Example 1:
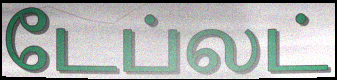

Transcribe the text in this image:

டேப்லட்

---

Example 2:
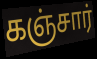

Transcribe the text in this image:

கஞ்சார்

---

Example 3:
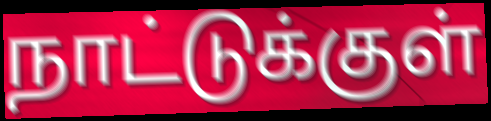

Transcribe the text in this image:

நாட்டுக்குள்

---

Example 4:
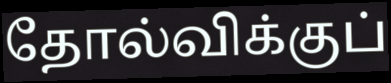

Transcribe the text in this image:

தோல்விக்குப்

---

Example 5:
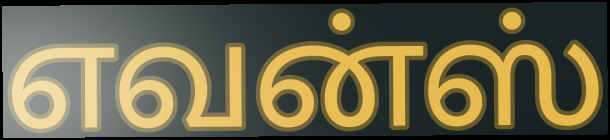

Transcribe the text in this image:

எவன்ஸ்